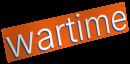
wartime